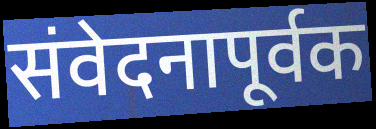
संवेदनापूर्वक